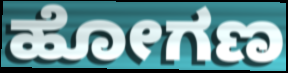
ಹೋಗಣ